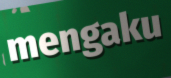
mengaku